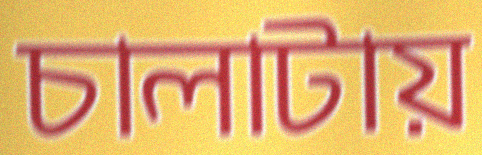
চালাটায়